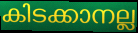
കിടക്കാനല്ല